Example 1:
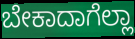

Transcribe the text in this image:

ಬೇಕಾದಾಗೆಲ್ಲಾ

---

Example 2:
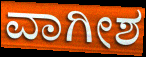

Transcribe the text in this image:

ವಾಗೀಶ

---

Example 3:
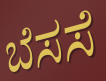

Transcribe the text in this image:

ಬೆಸಸೆ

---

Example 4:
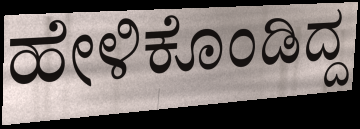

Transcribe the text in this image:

ಹೇಳಿಕೊಂಡಿದ್ದ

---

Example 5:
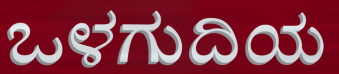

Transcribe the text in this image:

ಒಳಗುದಿಯ